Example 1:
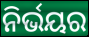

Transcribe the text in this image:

ନିର୍ଭୟର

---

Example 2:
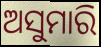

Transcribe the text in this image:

ଅସୁମାରି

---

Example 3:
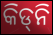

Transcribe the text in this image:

କିଡ୍‌ନି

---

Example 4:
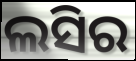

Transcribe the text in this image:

ଲସିର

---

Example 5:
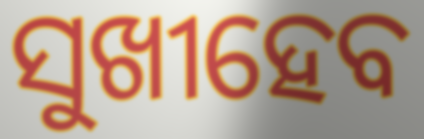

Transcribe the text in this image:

ସୁଖୀହେବ